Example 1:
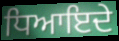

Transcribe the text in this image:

ਧਿਆਇਦੇ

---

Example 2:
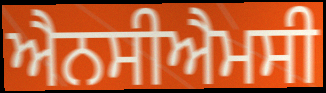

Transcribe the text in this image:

ਐਨਸੀਐਮਸੀ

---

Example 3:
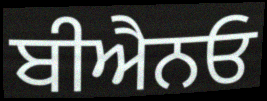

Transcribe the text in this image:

ਬੀਐਨਓ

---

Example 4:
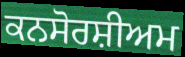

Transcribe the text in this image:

ਕਨਸੋਰਸ਼ੀਅਮ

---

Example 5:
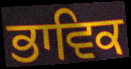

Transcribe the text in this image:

ਭਾਵਿਕ